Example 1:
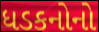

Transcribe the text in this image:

ધડકનોનો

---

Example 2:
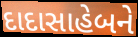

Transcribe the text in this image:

દાદાસાહેબને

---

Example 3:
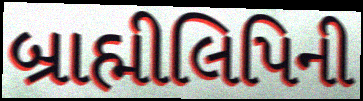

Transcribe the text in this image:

બ્રાહ્મીલિપિની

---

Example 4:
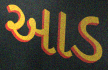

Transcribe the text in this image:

આડ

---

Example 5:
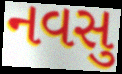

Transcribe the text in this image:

નવસુ